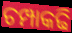
ଚମ୍ପାକଢି